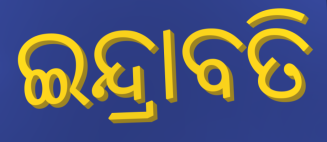
ଇନ୍ଦ୍ରାବତି